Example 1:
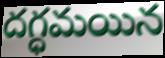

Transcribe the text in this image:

దగ్ధమయిన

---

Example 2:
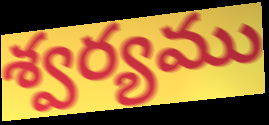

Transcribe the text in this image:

శ్వర్యము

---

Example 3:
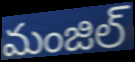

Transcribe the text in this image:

మంజిల్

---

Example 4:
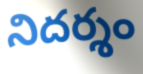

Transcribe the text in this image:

నిదర్శం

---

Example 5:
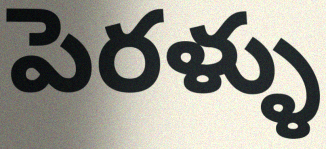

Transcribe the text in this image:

పెరళ్ళు